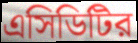
এসিডিটির